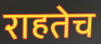
राहतेच